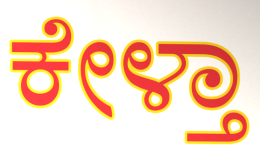
ಕೇಳ್ತಾ